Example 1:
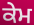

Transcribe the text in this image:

ਕੇਮ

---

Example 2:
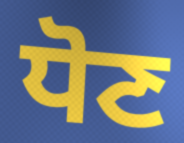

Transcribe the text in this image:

ਧੋਣ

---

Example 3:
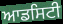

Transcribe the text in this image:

ਆਡਸਿਟੀ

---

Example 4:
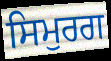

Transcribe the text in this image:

ਸਿਮੁਰਗ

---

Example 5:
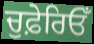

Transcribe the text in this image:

ਚੁਫ਼ੇਰਿਓਁ